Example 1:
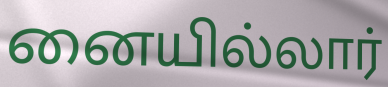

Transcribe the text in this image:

னையில்லார்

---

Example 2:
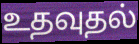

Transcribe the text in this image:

உதவுதல்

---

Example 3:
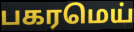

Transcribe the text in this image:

பகரமெய்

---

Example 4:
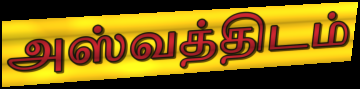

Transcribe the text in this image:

அஸ்வத்திடம்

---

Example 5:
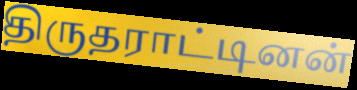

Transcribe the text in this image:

திருதராட்டினன்